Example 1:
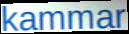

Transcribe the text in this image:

kammar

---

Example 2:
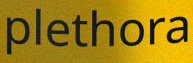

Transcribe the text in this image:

plethora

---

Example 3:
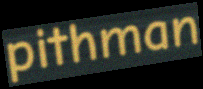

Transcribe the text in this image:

pithman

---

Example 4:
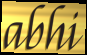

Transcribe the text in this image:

abhi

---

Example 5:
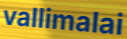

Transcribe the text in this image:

vallimalai